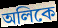
অলিকে